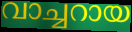
വാച്ചറായ